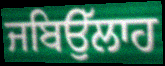
ਜਬਿਉੱਲਾਹ